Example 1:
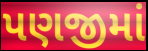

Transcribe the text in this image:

પણજીમાં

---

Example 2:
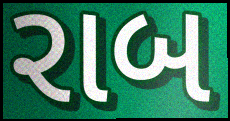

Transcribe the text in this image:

રાબ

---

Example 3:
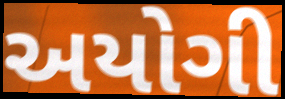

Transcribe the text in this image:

અયોગી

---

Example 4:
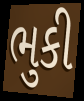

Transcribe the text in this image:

ભુકી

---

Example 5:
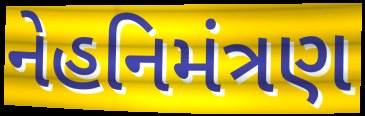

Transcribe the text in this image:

નેહનિમંત્રણ